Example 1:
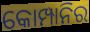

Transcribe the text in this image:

କୋମ୍ପାନିର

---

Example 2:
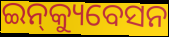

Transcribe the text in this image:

ଇନ୍‌କ୍ୟୁବେସନ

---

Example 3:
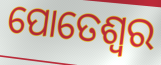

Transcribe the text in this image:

ପୋତେଶ୍ବର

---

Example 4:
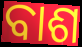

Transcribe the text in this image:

ବାଶ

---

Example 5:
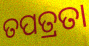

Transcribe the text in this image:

ତପତ୍ରତା